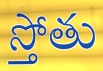
స్తోతు